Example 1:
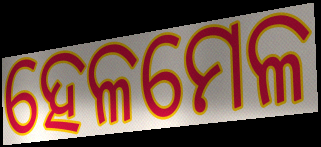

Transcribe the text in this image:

ହେଳମେଳ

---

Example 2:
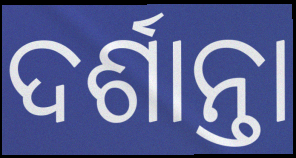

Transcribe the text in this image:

ଦର୍ଶାନ୍ତା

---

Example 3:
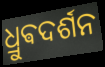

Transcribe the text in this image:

ଧ୍ରୁଵଦର୍ଶନ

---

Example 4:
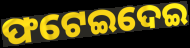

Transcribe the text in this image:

ଫଟେଇଦେଇ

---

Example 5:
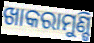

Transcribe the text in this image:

ଖାକରାମୁଣ୍ଡି